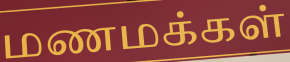
மணமக்கள்